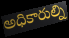
అధికారుల్ని